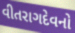
વીતરાગદેવનો